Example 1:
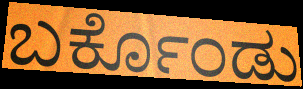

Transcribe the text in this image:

ಬರ್ಕೊಂಡು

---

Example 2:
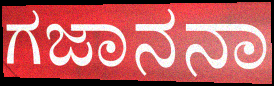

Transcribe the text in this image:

ಗಜಾನನಾ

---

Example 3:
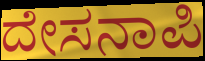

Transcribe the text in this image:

ದೇಸನಾಪಿ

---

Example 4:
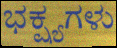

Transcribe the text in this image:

ಭಕ್ಷ್ಯಗಳು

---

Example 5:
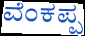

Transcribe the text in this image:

ವೆಂಕಪ್ಪ